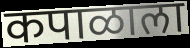
कपाळाला